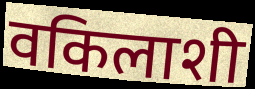
वकिलाशी